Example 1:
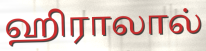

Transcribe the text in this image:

ஹிராலால்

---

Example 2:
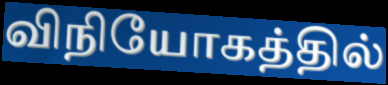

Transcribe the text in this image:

விநியோகத்தில்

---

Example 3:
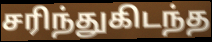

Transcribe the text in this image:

சரிந்துகிடந்த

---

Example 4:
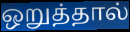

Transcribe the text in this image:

ஒறுத்தால்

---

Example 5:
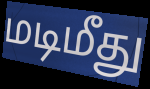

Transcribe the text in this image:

மடிமீது